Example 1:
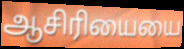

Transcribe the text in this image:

ஆசிரியையை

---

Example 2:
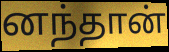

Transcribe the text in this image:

னந்தான்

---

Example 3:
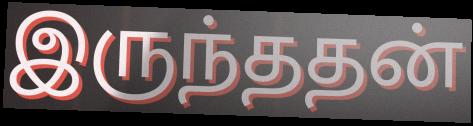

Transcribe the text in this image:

இருந்ததன்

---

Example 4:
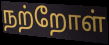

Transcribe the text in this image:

நற்றோள்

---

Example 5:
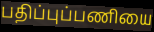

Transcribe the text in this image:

பதிப்புப்பணியை